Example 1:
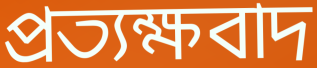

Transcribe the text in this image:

প্রত্যক্ষবাদ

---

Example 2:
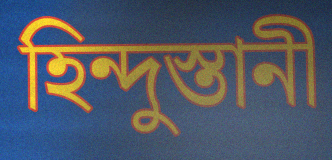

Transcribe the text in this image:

হিন্দুস্তানী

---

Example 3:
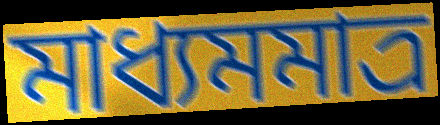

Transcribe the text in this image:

মাধ্যমমাত্র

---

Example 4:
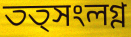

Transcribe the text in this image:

তত্সংলগ্ন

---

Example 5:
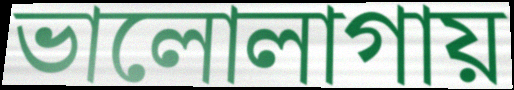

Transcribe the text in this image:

ভালোলাগায়